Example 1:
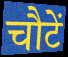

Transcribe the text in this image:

चौटें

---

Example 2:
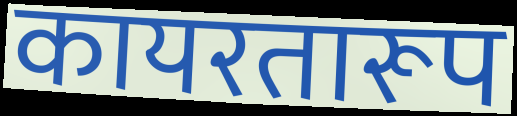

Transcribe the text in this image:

कायरतारूप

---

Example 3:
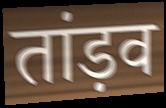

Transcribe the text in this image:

तांड़व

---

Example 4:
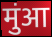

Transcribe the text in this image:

मुंआ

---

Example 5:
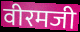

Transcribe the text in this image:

वीरमजी